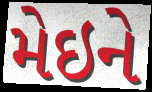
મેઇને